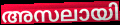
അസലായി